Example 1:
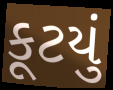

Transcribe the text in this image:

કૂટયું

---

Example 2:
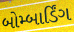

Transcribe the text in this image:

બોમ્બાર્ડિંગ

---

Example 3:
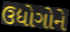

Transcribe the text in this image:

ઉદ્યોગોને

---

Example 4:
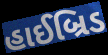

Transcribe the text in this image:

હાઈબ્રિડ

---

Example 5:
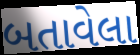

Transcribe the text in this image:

બતાવેલા